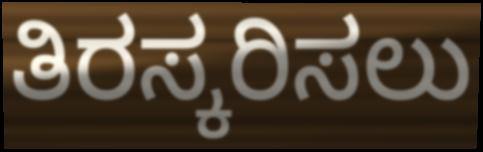
ತಿರಸ್ಕರಿಸಲು